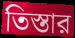
তিস্তার